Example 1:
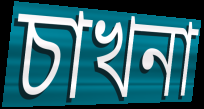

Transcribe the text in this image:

চাখনা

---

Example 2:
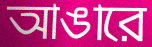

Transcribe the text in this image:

আঙারে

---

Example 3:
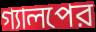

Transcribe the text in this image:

গ্যালপের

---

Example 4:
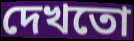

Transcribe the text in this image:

দেখতো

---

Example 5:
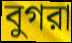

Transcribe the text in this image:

বুগরা